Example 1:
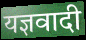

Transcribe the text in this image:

यज्ञवादी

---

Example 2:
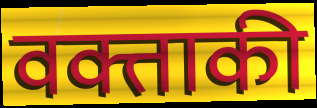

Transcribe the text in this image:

वक्ताकी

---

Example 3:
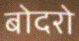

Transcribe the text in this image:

बोदरो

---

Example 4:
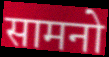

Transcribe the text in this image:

सामनो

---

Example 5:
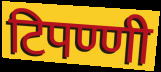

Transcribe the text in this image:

टिपण्णी